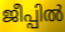
ജീപ്പിൽ